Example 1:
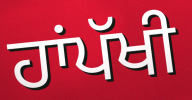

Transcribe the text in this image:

ਹਾਂਪੱਖੀ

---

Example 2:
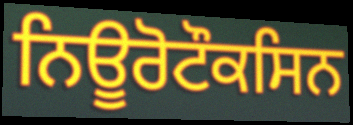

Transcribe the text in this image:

ਨਿਊਰੋਟੌਕਸਿਨ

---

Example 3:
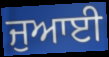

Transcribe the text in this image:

ਜੁਆਈ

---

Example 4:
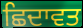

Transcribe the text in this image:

ਛਿਦਾਵਤ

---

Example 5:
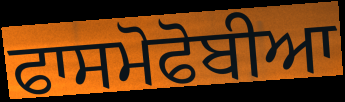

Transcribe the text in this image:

ਫਾਸਮੋਫੋਬੀਆ